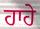
ਹਾਹੇ